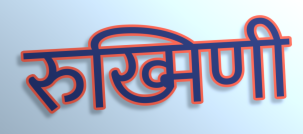
रुख्मिणी